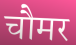
चौमर